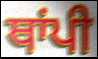
ਥਾਂਪੀ